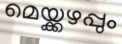
മെയ്ക്കഴപ്പും